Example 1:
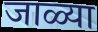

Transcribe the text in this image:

जाळ्या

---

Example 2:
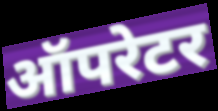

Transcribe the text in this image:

ऑपरेटर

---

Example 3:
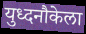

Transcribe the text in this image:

युध्दनौकेला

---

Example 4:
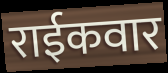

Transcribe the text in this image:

राईकवार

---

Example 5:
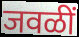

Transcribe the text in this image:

जवळीं